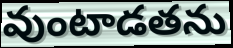
వుంటాడతను